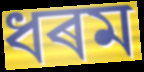
ধৰম